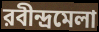
রবীন্দ্রমেলা